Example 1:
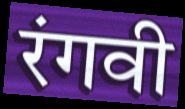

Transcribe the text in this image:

रंगवी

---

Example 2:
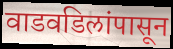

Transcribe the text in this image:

वाडवडिलांपासून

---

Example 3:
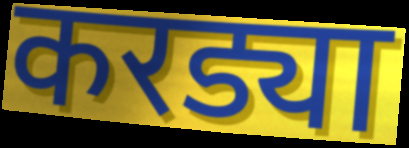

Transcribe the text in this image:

करड्या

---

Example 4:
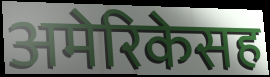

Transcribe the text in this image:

अमेरिकेसह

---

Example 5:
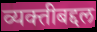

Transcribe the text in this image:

व्यक्तीबद्दल